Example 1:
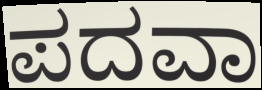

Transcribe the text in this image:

ಪದವಾ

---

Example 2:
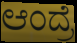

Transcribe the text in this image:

ಆಂದ್ರೆ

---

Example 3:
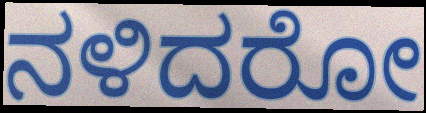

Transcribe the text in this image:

ನಳಿದರೋ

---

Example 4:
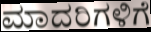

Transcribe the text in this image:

ಮಾದರಿಗಳಿಗೆ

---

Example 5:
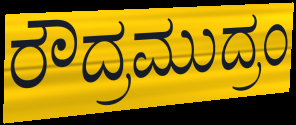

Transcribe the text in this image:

ರೌದ್ರಮುದ್ರಂ